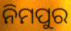
ନିମପୁର